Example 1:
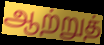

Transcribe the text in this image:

ஆற்றுத்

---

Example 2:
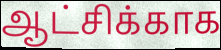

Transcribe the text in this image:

ஆட்சிக்காக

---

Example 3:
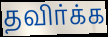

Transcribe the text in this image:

தவிர்க்க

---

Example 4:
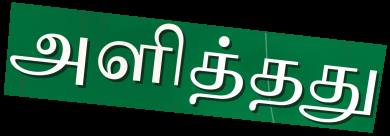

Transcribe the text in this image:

அளித்தது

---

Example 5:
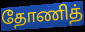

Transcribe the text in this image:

தோணித்